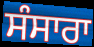
ਸੰਸਾਰਾ